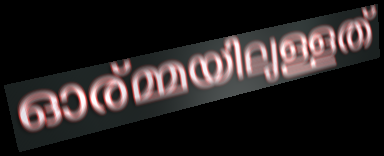
ഓര്മ്മയിലുള്ളത്